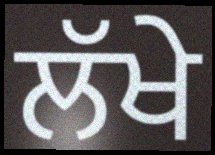
ਲੱਖੇ